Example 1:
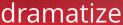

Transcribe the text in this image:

dramatize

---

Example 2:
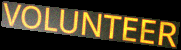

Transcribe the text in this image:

VOLUNTEER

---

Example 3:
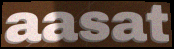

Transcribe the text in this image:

aasat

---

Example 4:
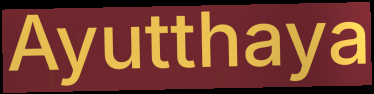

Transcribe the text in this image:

Ayutthaya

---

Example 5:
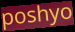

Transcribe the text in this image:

poshyo